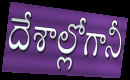
దేశాల్లోగానీ